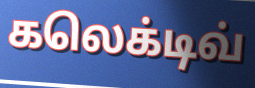
கலெக்டிவ்